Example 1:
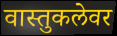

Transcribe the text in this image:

वास्तुकलेवर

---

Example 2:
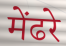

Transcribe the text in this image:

मेंढरे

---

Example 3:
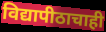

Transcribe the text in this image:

विद्यापीठाचाही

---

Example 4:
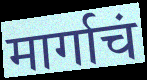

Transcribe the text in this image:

मार्गाचं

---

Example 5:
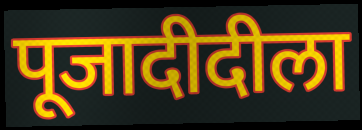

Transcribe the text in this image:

पूजादीदीला